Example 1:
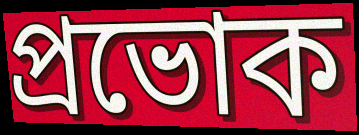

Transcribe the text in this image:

প্রভোক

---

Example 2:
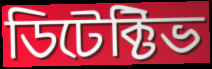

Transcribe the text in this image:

ডিটেক্টিভ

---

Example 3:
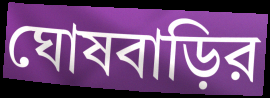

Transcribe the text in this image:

ঘোষবাড়ির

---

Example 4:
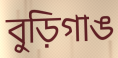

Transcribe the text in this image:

বুড়িগাঙ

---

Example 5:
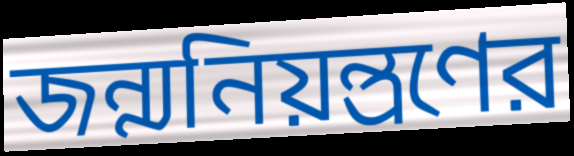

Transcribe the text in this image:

জন্মনিয়ন্ত্রণের